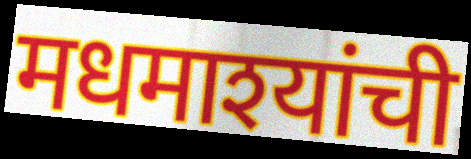
मधमाश्‍यांची